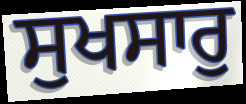
ਸੁਖਸਾਰੁ